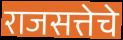
राजसत्तेचे